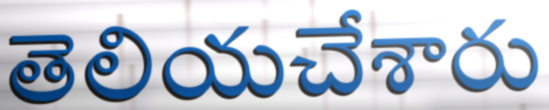
తెలియచేశారు